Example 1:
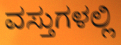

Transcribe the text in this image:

ವಸ್ತುಗಳಲ್ಲಿ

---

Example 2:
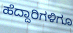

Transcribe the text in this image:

ಹೆದ್ದಾರಿಗಳಿಗೂ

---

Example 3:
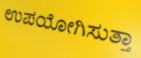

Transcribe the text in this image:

ಉಪಯೋಗಿಸುತ್ತಾ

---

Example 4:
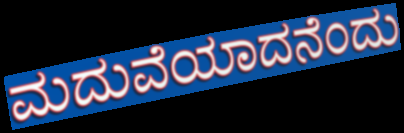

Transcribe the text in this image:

ಮದುವೆಯಾದನೆಂದು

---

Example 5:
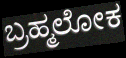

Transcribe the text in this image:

ಬ್ರಹ್ಮಲೋಕ